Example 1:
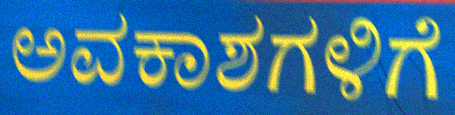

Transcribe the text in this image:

ಅವಕಾಶಗಳಿಗೆ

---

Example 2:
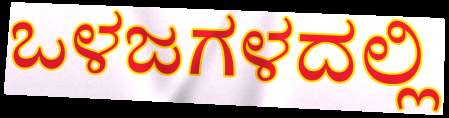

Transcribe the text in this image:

ಒಳಜಗಳದಲ್ಲಿ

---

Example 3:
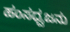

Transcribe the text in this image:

ಹಂಸಧ್ವಜನು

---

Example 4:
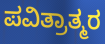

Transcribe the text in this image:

ಪವಿತ್ರಾತ್ಮರ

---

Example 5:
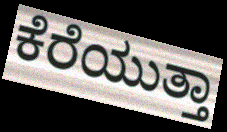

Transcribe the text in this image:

ಕೆರೆಯುತ್ತಾ